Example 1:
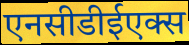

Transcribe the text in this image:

एनसीडीईएक्स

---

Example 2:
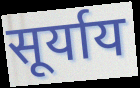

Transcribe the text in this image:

सूर्याय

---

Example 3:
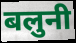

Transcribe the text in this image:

बलुनी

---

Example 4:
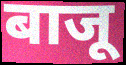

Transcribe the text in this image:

बाजू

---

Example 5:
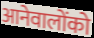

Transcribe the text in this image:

आनेवालोंको